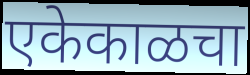
एकेकाळचा